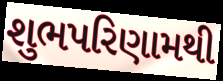
શુભપરિણામથી